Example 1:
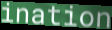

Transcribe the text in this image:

ination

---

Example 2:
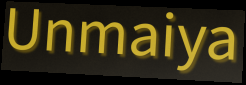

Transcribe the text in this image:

Unmaiya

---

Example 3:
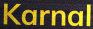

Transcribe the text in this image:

Karnal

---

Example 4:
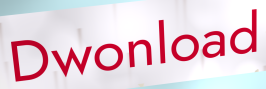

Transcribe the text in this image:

Dwonload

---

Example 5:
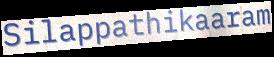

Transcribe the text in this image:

Silappathikaaram